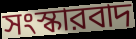
সংস্কারবাদ